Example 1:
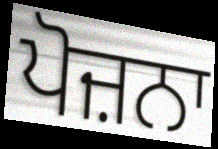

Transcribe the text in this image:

ਪੋਜ਼ਨਾ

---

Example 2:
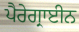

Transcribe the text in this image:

ਪੈਰੇਗ੍ਰਾਈਨ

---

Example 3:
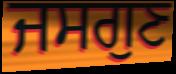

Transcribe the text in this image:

ਜਸਗੁਣ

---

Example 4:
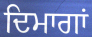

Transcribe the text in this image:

ਦਿਮਾਗਾਂ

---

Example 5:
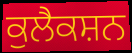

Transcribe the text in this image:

ਕੁਲੈਕਸ਼ਨ